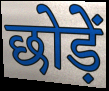
छोड़ें